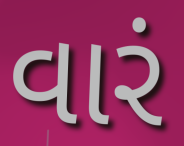
વારં